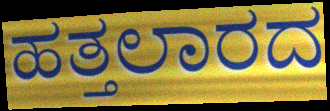
ಹತ್ತಲಾರದ